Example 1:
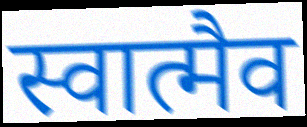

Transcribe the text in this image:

स्वात्मैव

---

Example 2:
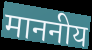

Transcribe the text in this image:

माननीय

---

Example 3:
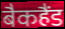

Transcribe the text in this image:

बैकहैंड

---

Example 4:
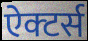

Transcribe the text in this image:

ऐक्‍टर्स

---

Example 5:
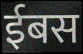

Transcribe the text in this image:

ईबस